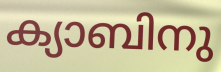
ക്യാബിനു